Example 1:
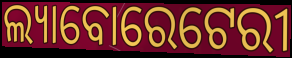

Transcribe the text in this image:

ଲ୍ୟାବୋରେଟେରୀ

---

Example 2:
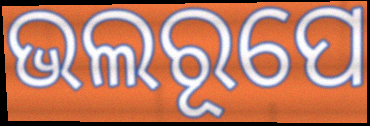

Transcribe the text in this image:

ଭଲରୂପେ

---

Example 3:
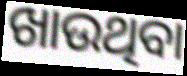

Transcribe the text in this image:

ଖାଉଥିବା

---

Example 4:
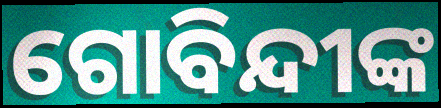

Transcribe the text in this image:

ଗୋବିନ୍ଦୀଙ୍କ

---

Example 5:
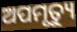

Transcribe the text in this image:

ଅପମୃତ୍ୟୁ